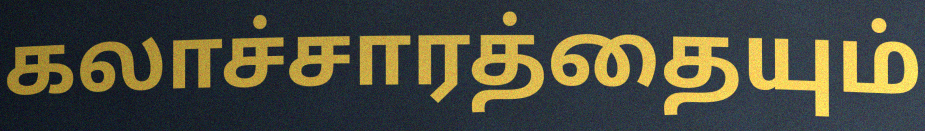
கலாச்சாரத்தையும்